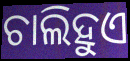
ଚାଲିହୁଏ